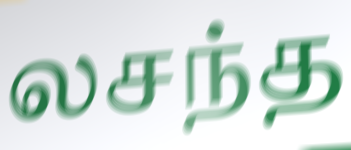
லசந்த